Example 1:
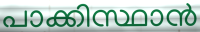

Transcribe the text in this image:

പാക്കിസ്ഥാൻ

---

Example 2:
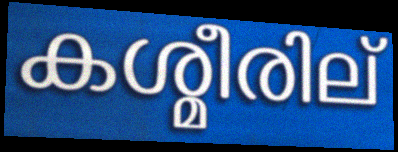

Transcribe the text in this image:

കശ്മീരില്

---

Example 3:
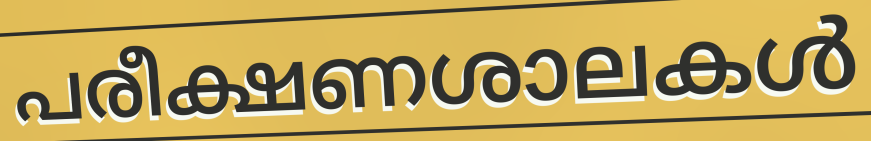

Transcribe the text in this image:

പരീക്ഷണശാലകൾ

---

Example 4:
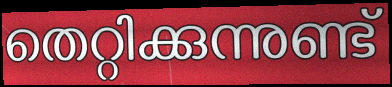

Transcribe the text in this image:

തെറ്റിക്കുന്നുണ്ട്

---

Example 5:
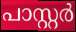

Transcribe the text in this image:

പാസ്റ്റർ